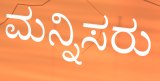
ಮನ್ನಿಸರು